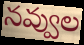
నవ్వుల